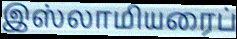
இஸ்லாமியரைப்